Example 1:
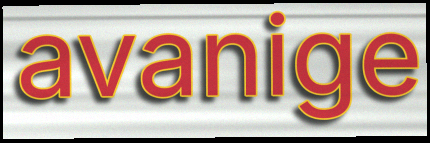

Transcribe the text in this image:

avanige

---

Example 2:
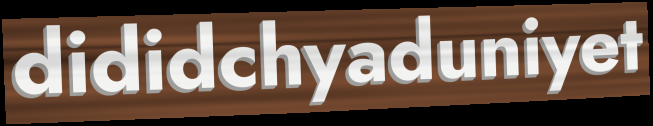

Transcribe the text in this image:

dididchyaduniyet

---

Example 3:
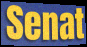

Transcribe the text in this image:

Senat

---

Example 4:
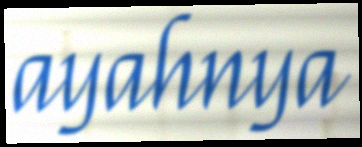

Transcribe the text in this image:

ayahnya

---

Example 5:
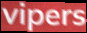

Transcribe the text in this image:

vipers